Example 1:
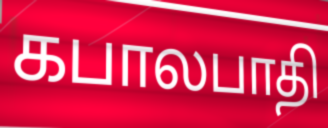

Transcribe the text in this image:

கபாலபாதி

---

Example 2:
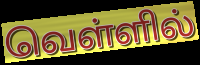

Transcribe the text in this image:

வெள்ளில்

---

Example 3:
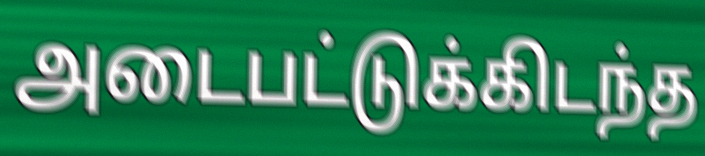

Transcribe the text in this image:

அடைபட்டுக்கிடந்த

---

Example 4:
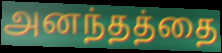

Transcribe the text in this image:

அனந்தத்தை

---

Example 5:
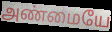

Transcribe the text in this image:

அண்மையே